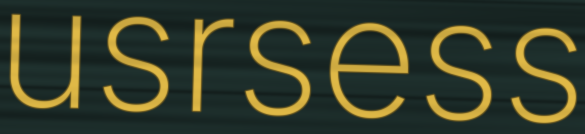
usrsess